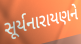
સૂર્યનારાયણને